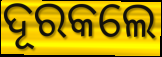
ଦୂରକଲେ